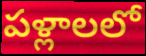
పళ్లాలలో